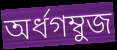
অর্ধগম্বুজ